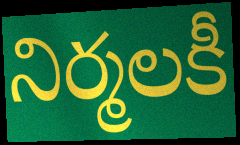
నిర్మలకీ